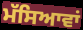
ਮੱਸਿਆਵਾਂ